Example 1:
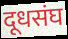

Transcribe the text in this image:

दूधसंघ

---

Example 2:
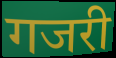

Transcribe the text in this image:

गजरी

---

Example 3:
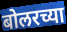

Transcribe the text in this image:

बोलरच्या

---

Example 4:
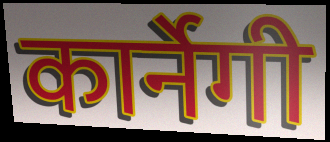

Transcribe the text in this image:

कार्नेगी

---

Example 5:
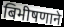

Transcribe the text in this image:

बिभीषणाने